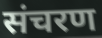
संचरण